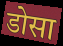
डोसा